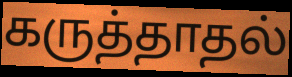
கருத்தாதல்